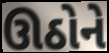
ઊઠોને